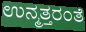
ಉನ್ಮತ್ತರಂತೆ